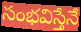
సంభవిస్తేనే